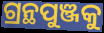
ଗ୍ରନ୍ଥପୁଞ୍ଜକୁ